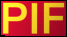
PIF